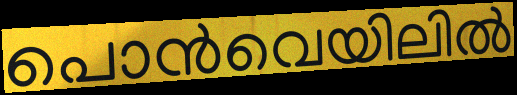
പൊൻവെയിലിൽ